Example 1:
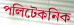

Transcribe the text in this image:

পলিটেকনিক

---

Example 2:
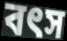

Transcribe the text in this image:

বৎস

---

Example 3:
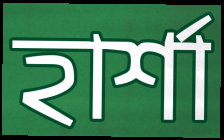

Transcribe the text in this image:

হার্শা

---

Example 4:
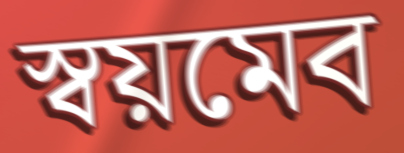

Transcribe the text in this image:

স্বয়মেব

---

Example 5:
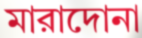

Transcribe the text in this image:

মারাদোনা